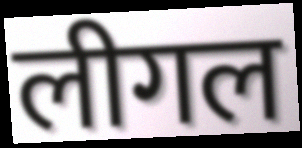
लीगल